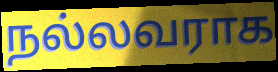
நல்லவராக